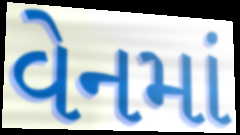
વેનમાં